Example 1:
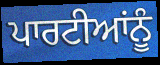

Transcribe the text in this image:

ਪਾਰਟੀਆਂਨੂੰ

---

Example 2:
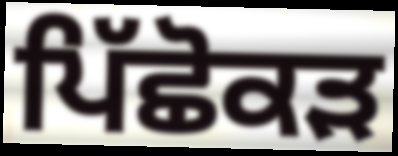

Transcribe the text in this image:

ਪਿੱਛੋਕੜ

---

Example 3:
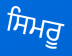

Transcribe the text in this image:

ਸਿਮਰੂ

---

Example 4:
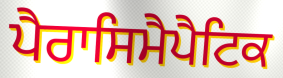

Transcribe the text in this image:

ਪੈਰਾਸਿਮੈਪੈਟਿਕ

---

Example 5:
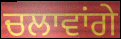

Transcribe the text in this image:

ਚਲਾਵਾਂਗੇ